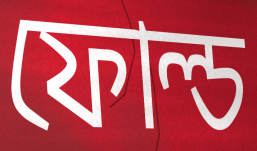
ফোল্ড